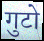
गुटो